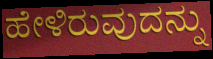
ಹೇಳಿರುವುದನ್ನು